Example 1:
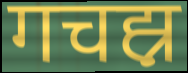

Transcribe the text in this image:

गचह्न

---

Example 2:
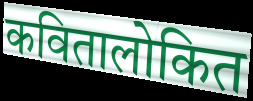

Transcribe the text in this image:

कवितालोकित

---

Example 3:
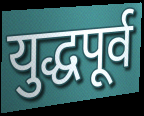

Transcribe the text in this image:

युद्धपूर्व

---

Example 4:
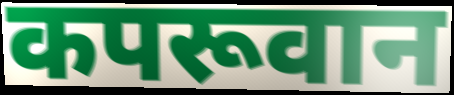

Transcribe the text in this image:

कपरूवान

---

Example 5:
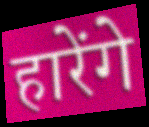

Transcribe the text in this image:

हारेंगे